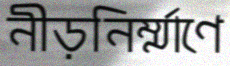
নীড়নির্ম্মাণে